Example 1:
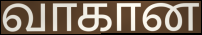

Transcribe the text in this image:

வாகான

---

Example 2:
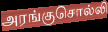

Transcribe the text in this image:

அரங்குசொல்லி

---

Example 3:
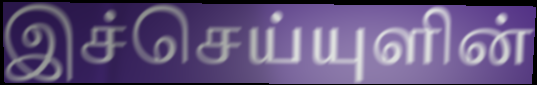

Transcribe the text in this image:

இச்செய்யுளின்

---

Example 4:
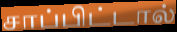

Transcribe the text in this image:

சாப்பிட்டால்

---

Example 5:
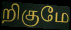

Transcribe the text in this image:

றிகுமே